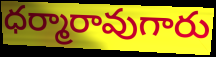
ధర్మారావుగారు